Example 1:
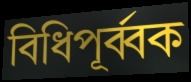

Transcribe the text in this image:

বিধিপূর্ব্বক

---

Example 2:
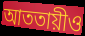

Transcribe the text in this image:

আততায়ীও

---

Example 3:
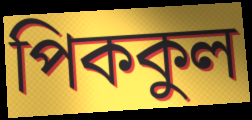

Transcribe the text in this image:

পিককুল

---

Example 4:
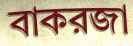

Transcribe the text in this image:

বাকরজা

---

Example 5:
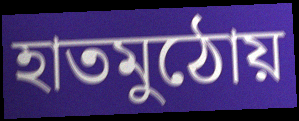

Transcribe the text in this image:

হাতমুঠোয়